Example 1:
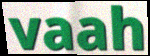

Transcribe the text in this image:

vaah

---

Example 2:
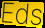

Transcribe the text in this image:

Eds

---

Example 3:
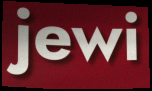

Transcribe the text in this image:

jewi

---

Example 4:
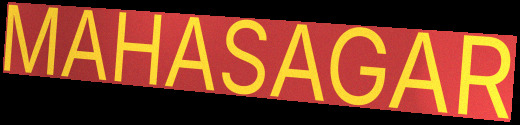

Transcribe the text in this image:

MAHASAGAR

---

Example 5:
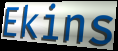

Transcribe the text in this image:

Ekins